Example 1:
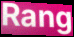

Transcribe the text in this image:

Rang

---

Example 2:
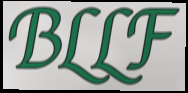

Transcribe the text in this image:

BLLF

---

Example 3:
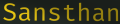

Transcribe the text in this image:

Sansthan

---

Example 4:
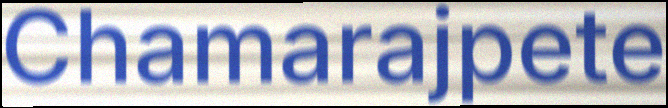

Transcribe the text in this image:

Chamarajpete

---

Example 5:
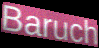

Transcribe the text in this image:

Baruch